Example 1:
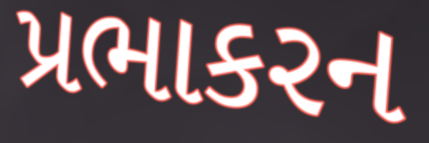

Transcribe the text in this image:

પ્રભાકરન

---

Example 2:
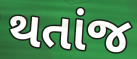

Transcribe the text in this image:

થતાંજ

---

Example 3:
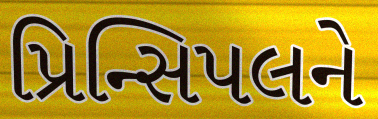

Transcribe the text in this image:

પ્રિન્સિપલને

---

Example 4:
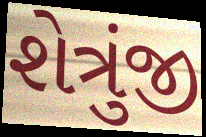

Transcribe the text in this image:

શેત્રુંજી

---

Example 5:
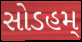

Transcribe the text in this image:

સોડહમ્